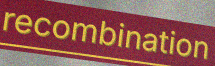
recombination